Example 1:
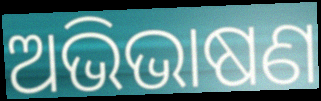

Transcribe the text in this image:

ଅଭିଭାଷଣ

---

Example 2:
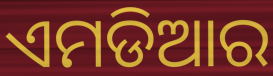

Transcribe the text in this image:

ଏମଡିଆର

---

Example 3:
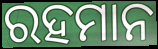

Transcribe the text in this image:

ରହମାନ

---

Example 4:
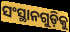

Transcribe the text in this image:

ସଂସ୍ଥାନଗୁଡ଼ିକୁ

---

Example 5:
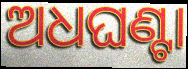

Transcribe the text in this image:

ଅଧଘଣ୍ଟା